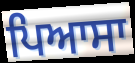
ਪਿਆਸਾ